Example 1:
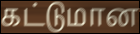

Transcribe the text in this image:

கட்டுமான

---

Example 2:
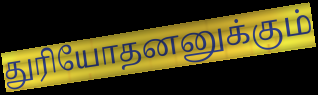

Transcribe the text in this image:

துரியோதனனுக்கும்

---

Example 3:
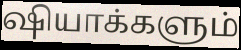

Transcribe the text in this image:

ஷியாக்களும்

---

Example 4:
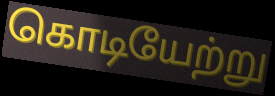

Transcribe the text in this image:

கொடியேற்று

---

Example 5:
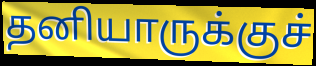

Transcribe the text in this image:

தனியாருக்குச்